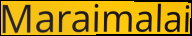
Maraimalai